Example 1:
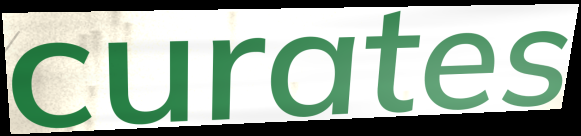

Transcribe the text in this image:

curates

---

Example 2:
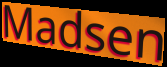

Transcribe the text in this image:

Madsen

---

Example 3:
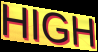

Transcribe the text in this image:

HIGH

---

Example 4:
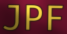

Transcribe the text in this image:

JPF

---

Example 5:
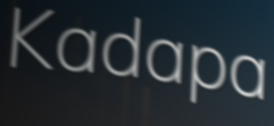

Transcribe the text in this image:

Kadapa